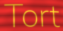
Tort